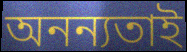
অনন্যতাই